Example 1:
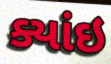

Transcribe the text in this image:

ક્યાંઇ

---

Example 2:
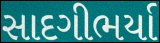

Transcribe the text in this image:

સાદગીભર્યા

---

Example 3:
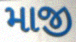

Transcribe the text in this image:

માજી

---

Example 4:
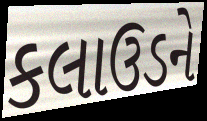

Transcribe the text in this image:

કલાઉડને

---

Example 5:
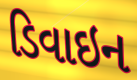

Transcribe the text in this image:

ડિવાઇન